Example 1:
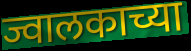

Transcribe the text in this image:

ज्वालकाच्या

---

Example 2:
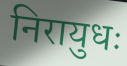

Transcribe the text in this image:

निरायुधः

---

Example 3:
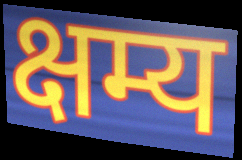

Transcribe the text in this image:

क्षम्य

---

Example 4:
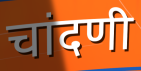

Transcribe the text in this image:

चांदणी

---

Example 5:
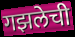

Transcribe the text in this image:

गझलेची